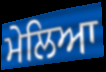
ਮੇਲਿਆ